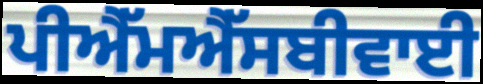
ਪੀਐੱਮਐੱਸਬੀਵਾਈ